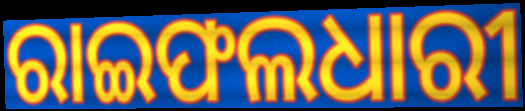
ରାଇଫଲଧାରୀ